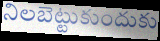
నిలబెట్టుకుందుకు